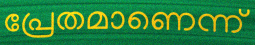
പ്രേതമാണെന്ന്